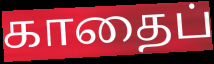
காதைப்